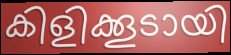
കിളിക്കൂടായി